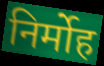
निर्मोह